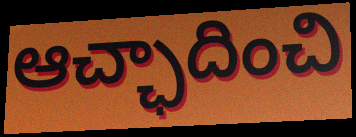
ఆచ్ఛాదించి